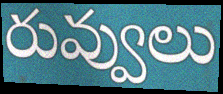
రువ్వులు